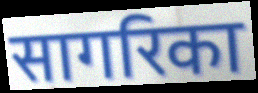
सागरिका